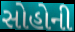
સોહોની